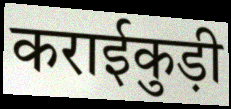
कराईकुड़ी